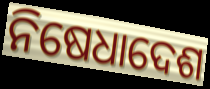
ନିଷେଧାଦେଶ